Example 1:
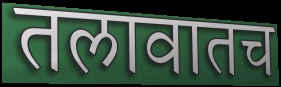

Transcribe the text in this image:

तलावातच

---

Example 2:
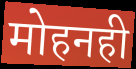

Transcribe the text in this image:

मोहनही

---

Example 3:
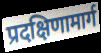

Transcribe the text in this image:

प्रदक्षिणामार्ग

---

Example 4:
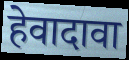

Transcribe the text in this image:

हेवादावा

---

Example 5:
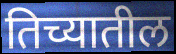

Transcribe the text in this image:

तिच्यातील